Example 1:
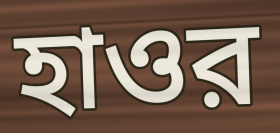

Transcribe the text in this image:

হাওর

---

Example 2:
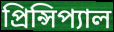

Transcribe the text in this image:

প্রিন্সিপ্যাল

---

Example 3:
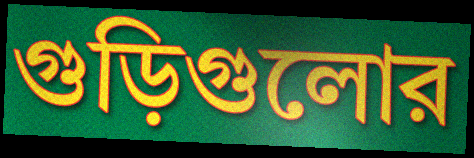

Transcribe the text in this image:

গুড়িগুলোর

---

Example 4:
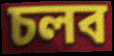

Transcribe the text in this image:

চলব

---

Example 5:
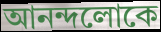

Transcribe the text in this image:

আনন্দলোকে